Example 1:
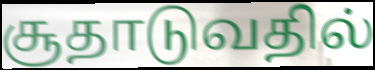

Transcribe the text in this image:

சூதாடுவதில்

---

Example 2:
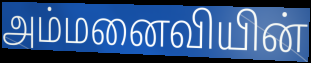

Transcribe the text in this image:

அம்மனைவியின்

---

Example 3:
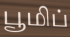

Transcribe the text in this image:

பூமிப்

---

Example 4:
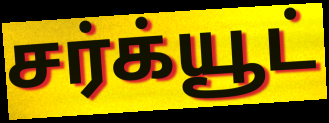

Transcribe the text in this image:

சர்க்யூட்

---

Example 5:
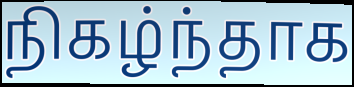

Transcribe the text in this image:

நிகழ்ந்தாக